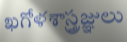
ఖగోళశాస్త్రజ్ఞులు